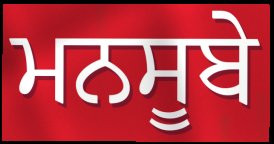
ਮਨਸੂਬੇ